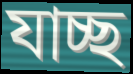
যাচ্ছ